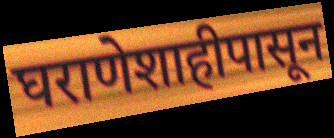
घराणेशाहीपासून